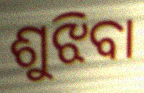
ଶୁଝିବା